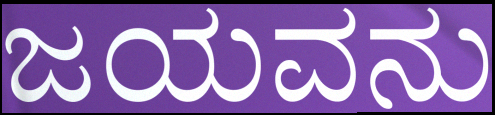
ಜಯವನು